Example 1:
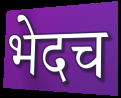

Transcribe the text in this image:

भेदच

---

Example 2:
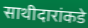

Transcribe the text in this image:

साथीदारांकडे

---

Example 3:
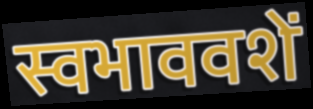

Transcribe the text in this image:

स्वभाववशें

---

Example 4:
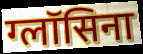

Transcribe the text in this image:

ग्लॉसिना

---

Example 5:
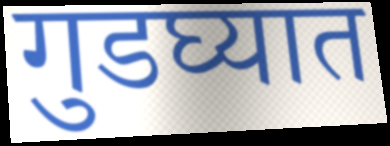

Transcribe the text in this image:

गुडघ्यात